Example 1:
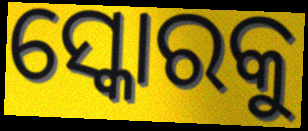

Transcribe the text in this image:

ସ୍କୋରକୁ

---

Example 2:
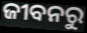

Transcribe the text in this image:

ଜୀବନରୁ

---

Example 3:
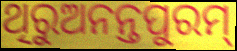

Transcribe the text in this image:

ଥିରୁଅନନ୍ତପୁରମ୍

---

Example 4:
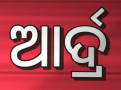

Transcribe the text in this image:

ଆର୍ଦ୍ର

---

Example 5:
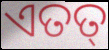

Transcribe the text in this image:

ଏତତ୍